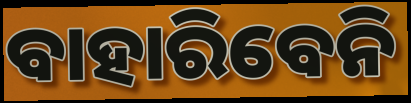
ବାହାରିବେନି